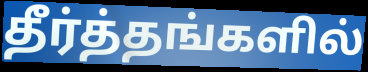
தீர்த்தங்களில்